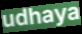
udhaya